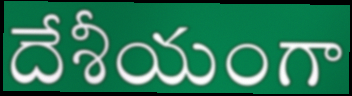
దేశీయంగా